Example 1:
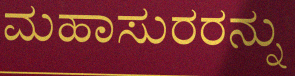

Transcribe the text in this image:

ಮಹಾಸುರರನ್ನು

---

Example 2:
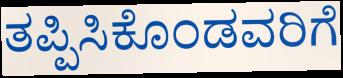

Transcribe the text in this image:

ತಪ್ಪಿಸಿಕೊಂಡವರಿಗೆ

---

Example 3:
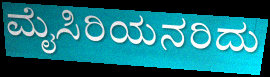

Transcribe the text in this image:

ಮೈಸಿರಿಯನರಿದು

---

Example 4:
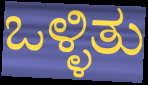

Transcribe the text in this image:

ಒಳ್ಳಿತು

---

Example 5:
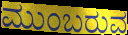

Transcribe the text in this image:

ಮುಂಬರುವ